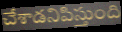
చేశాడనిపిస్తుంది